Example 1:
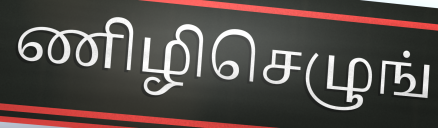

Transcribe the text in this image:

ணிழிசெழுங்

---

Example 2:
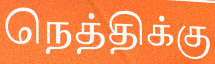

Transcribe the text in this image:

நெத்திக்கு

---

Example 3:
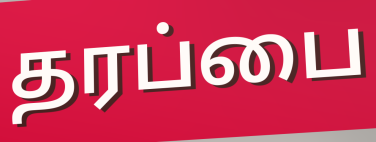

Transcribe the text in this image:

தரப்பை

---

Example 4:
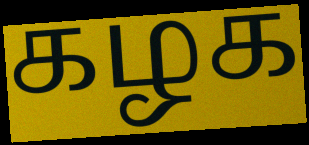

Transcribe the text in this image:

கழக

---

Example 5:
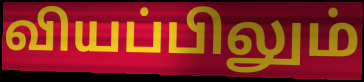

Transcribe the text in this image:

வியப்பிலும்